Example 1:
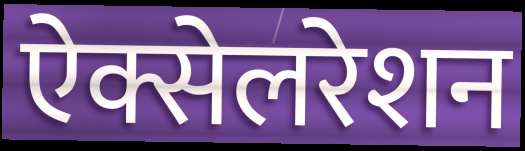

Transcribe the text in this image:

ऐक्सेलरेशन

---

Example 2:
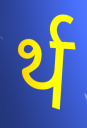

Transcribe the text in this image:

र्थ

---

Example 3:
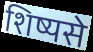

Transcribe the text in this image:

शिष्यसे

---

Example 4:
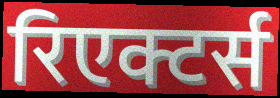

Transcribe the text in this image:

रिएक्टर्स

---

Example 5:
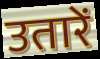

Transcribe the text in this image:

उतारें